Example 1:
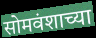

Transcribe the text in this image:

सोमवंशाच्या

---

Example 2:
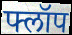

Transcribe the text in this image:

फ्लॉप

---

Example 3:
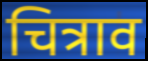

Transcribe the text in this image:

चित्राव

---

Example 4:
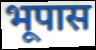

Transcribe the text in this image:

भूपास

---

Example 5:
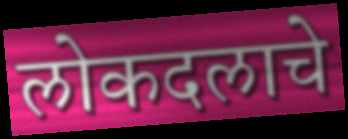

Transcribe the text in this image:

लोकदलाचे